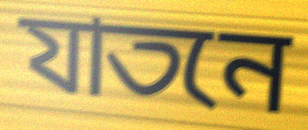
যাতনে